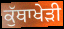
ਕੁੱਥਾਖੇੜੀ